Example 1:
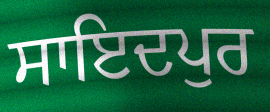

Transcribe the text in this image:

ਸਾਇਦਪੁਰ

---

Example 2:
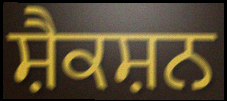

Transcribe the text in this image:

ਸ਼ੈਕਸ਼ਨ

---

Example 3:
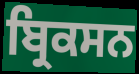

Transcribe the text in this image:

ਬ੍ਰਿਕਸਨ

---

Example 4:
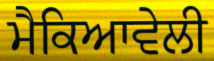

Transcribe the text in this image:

ਮੈਕਿਆਵੇਲੀ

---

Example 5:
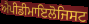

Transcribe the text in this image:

ਐਪੀਡੀਮਾਇਲੋਜਿਸਟ